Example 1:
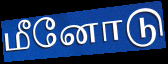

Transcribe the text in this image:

மீனோடு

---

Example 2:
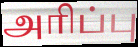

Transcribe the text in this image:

அரிப்பு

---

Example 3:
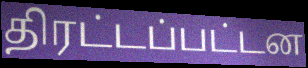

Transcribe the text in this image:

திரட்டப்பட்டன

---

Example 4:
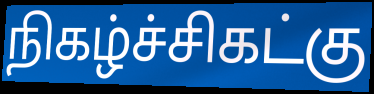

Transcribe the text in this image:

நிகழ்ச்சிகட்கு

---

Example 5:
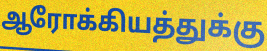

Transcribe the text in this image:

ஆரோக்கியத்துக்கு